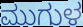
ಮುಗುಳ